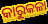
କାରୁକଳା